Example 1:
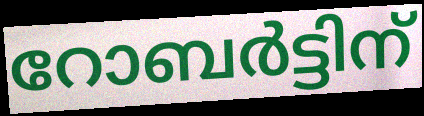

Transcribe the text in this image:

റോബർട്ടിന്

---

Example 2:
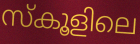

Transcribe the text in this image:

സ്കൂളിലെ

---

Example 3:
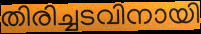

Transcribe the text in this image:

തിരിച്ചടവിനായി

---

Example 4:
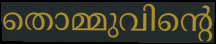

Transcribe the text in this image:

തൊമ്മുവിന്റെ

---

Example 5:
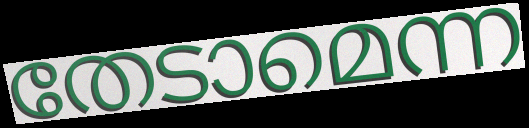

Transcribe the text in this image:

തേടാമെന്ന